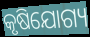
କୃଷିଯୋଗ୍ୟ